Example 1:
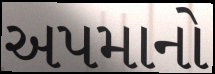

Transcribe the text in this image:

અપમાનો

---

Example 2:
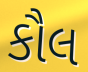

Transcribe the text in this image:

કૌલ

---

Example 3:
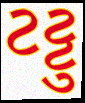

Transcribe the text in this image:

ટટ્ટુ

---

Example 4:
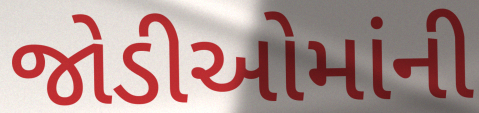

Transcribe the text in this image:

જોડીઓમાંની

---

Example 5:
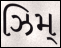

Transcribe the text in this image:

ઝિમ્